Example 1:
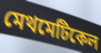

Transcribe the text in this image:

মেথমেটিকেল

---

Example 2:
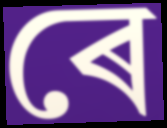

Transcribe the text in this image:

ৰে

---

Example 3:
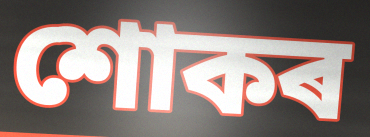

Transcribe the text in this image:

শোকৰ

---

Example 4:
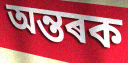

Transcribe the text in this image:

অন্তৰক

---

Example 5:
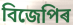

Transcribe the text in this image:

বিজেপিৰ